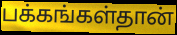
பக்கங்கள்தான்